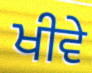
ਖੀਵੇ